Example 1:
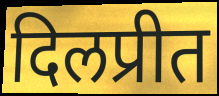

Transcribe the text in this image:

दिलप्रीत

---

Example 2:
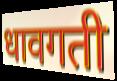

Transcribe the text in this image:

धावगती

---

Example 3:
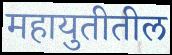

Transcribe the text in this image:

महायुतीतील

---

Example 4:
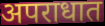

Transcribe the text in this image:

अपराधात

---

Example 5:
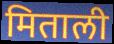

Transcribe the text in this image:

मिताली